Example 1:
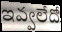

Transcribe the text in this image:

ఇవ్వలేదో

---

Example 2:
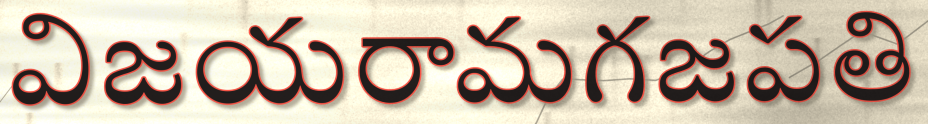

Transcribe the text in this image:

విజయరామగజపతి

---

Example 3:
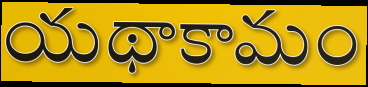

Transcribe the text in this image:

యథాకామం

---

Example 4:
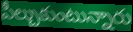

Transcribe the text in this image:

పీల్చుకుంటున్నారు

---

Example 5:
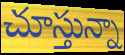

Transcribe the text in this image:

చూస్తున్నా